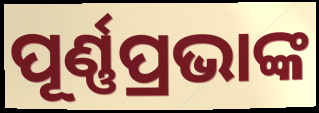
ପୂର୍ଣ୍ଣପ୍ରଭାଙ୍କ